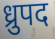
ध्रुपद